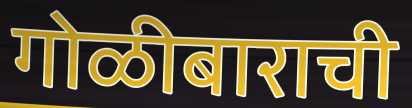
गोळीबाराची